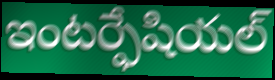
ఇంటర్ఫేషియల్